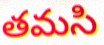
తమసి